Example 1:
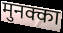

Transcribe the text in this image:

मुनक्का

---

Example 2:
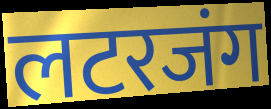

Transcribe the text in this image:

लटरजंग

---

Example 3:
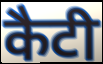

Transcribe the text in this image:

कैटी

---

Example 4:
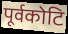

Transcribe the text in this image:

पूर्वकोटि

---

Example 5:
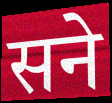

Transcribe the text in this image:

सने